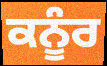
ਕਨੂੰਰ